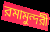
রমামুন্দরী